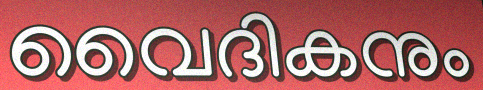
വൈദികനും